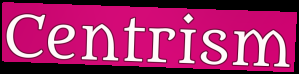
Centrism